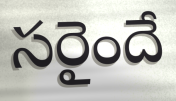
సరైందే